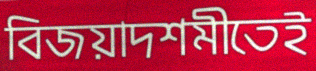
বিজয়াদশমীতেই